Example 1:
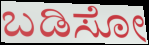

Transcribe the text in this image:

ಬಡಿಸೋ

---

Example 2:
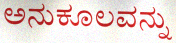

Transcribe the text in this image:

ಅನುಕೂಲವನ್ನು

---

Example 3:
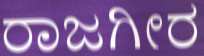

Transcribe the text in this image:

ರಾಜಗೀರ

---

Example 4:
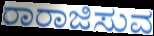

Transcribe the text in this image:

ರಾರಾಜಿಸುವ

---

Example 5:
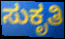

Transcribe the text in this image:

ಸುಕೃತಿ